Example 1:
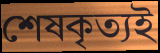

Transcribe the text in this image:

শেষকৃত্যই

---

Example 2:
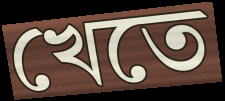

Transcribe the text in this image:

খেতে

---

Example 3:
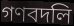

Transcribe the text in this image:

গণবদলি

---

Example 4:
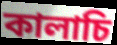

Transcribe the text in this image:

কালাচি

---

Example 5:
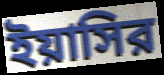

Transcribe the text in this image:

ইয়াসির